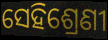
ସେହିଶ୍ରେଣୀ